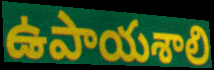
ఉపాయశాలి